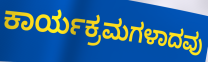
ಕಾರ್ಯಕ್ರಮಗಳಾದವು